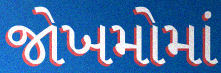
જોખમોમાં